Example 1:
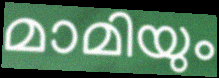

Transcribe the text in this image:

മാമിയും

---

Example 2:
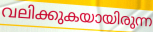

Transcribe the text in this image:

വലിക്കുകയായിരുന്ന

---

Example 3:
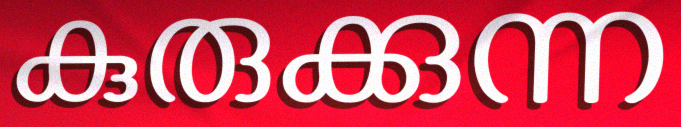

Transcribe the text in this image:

കുരുക്കുന്ന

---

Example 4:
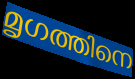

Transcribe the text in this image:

മൃഗത്തിനെ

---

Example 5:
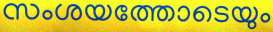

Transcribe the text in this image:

സംശയത്തോടെയും